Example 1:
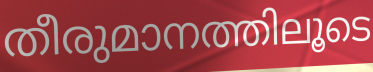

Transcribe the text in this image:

തീരുമാനത്തിലൂടെ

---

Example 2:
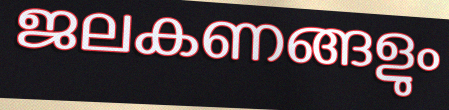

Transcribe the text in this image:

ജലകണങ്ങളും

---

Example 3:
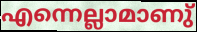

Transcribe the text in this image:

എന്നെല്ലാമാണു്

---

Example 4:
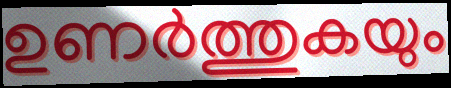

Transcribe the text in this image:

ഉണർത്തുകയും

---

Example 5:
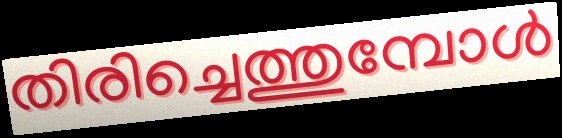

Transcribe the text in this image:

തിരിച്ചെത്തുമ്പോൾ